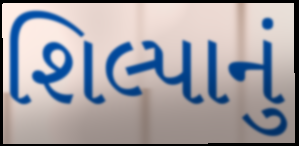
શિલ્પાનું